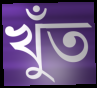
খুঁত